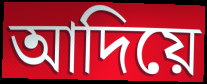
আদিয়ে